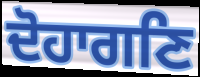
ਦੋਹਾਗਣਿ